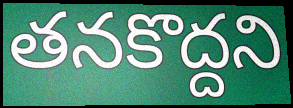
తనకొద్దని